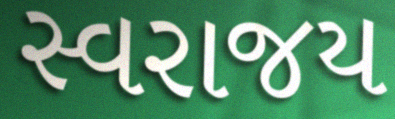
સ્વરાજય